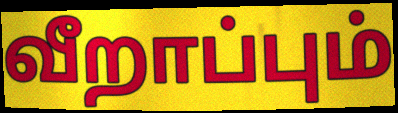
வீறாப்பும்